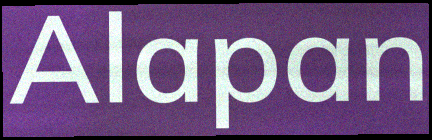
Alapan